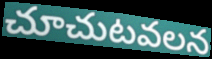
చూచుటవలన